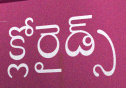
క్లోరైడ్స్